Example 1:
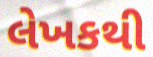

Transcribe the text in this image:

લેખકથી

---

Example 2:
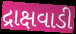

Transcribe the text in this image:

દ્રાક્ષવાડી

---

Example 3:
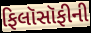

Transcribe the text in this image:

ફિલૉસૉફીની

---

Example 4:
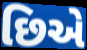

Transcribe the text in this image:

છિએ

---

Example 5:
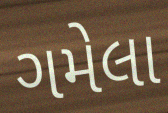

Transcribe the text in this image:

ગમેલા